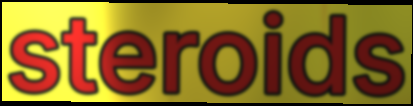
steroids